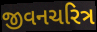
જીવનચરિત્ર